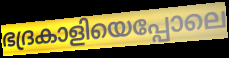
ഭദ്രകാളിയെപ്പോലെ